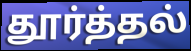
தூர்த்தல்